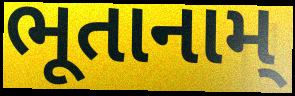
ભૂતાનામ્